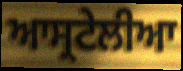
ਆਸ੍ਰਟੇਲੀਆ